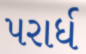
પરાર્ધ